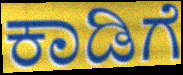
ಕಾಡಿಗೆ